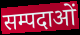
सम्पदाओं